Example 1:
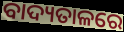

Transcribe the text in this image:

ବାଦ୍ୟତାଳରେ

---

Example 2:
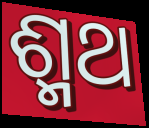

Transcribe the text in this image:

ଶ୍ମଥ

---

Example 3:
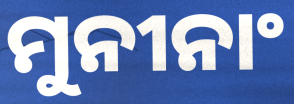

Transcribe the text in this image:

ମୁନୀନାଂ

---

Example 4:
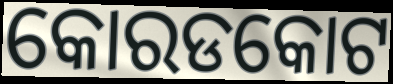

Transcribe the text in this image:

କୋରଡକୋଟ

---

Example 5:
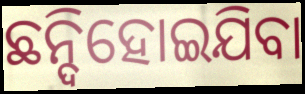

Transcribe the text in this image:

ଛନ୍ଦିହୋଇଯିବା